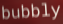
bubbly